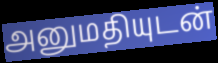
அனுமதியுடன்